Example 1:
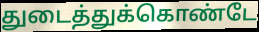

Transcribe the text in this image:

துடைத்துக்கொண்டே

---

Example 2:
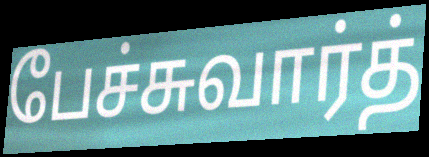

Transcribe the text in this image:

பேச்சுவார்த்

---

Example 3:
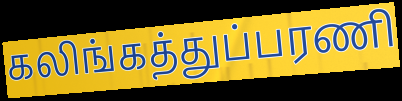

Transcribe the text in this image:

கலிங்கத்துப்பரணி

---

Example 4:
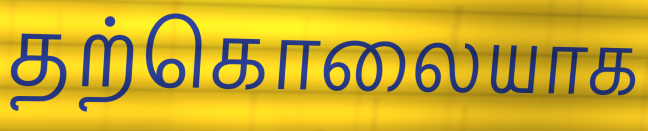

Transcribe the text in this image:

தற்கொலையாக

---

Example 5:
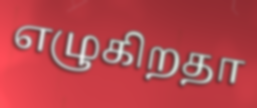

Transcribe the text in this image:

எழுகிறதா